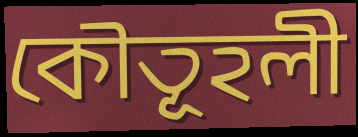
কৌতূহলী